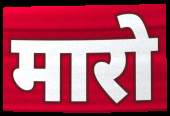
मारो